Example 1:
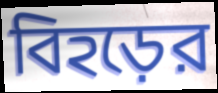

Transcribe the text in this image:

বিহড়ের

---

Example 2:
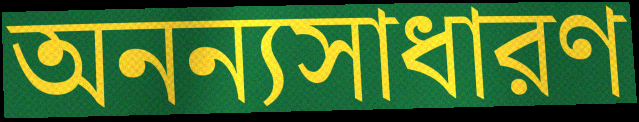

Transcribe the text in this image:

অনন্যসাধারণ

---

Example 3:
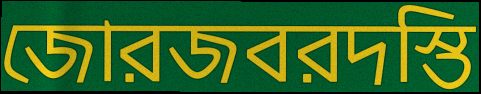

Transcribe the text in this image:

জোরজবরদস্তি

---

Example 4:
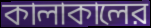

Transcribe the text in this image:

কালাকালের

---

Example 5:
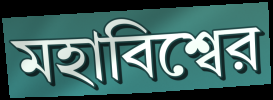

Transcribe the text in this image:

মহাবিশ্বের